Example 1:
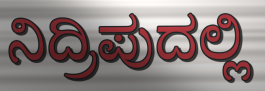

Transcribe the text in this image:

ನಿದ್ರಿಪುದಲ್ಲಿ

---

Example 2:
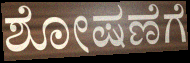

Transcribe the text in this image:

ಶೋಷಣೆಗೆ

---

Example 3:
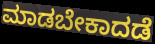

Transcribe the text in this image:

ಮಾಡಬೇಕಾದಡೆ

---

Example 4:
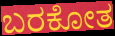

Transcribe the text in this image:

ಬರಕೋತ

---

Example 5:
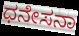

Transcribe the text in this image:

ಧನೇಸನಾ